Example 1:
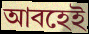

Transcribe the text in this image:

আবহেই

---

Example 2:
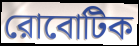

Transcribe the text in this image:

রোবোটিক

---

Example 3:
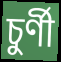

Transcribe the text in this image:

চুর্ণী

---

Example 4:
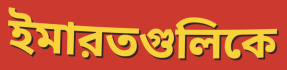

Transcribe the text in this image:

ইমারতগুলিকে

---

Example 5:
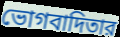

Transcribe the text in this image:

ভোগবাদিতার